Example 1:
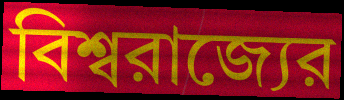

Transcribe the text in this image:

বিশ্বরাজ্যের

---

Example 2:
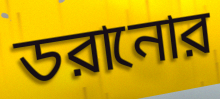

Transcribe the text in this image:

ডরানোর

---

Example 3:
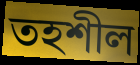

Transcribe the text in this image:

তহশীল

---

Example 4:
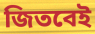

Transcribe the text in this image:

জিতবেই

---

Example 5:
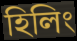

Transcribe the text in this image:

হিলিং